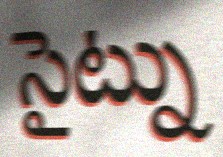
సైట్ను